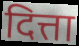
दित्ता